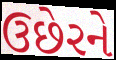
ઉછેરને